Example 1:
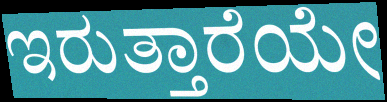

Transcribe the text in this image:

ಇರುತ್ತಾರೆಯೇ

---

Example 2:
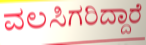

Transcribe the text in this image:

ವಲಸಿಗರಿದ್ದಾರೆ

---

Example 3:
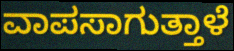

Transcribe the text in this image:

ವಾಪಸಾಗುತ್ತಾಳೆ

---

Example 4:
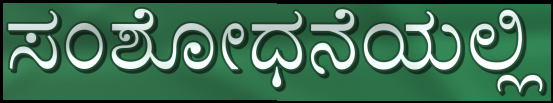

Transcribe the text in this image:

ಸಂಶೋಧನೆಯಲ್ಲಿ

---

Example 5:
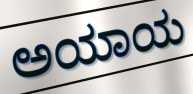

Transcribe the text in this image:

ಅಯಾಯ